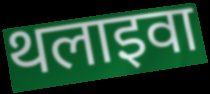
थलाइवा